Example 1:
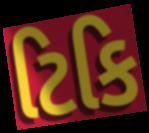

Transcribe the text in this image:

ટિકિ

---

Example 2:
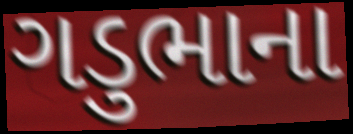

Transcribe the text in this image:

ગડુભાના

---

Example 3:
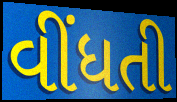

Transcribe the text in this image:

વીંધતી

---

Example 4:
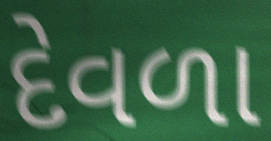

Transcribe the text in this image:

દેવળા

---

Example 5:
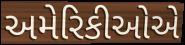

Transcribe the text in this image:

અમેરિકીઓએ